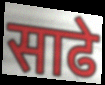
साढे